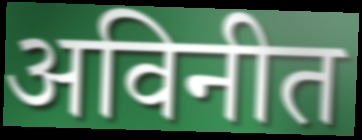
अविनीत